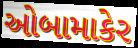
ઓબામાકેર